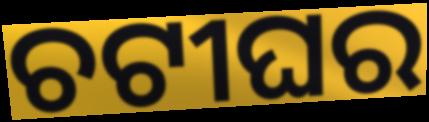
ଚଟୀଘର